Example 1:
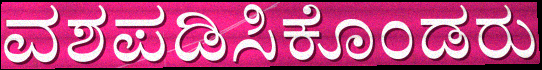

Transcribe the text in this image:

ವಶಪಡಿಸಿಕೊಂಡರು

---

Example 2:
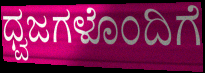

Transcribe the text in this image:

ಧ್ವಜಗಳೊಂದಿಗೆ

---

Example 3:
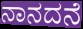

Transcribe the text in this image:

ನಾನದನೆ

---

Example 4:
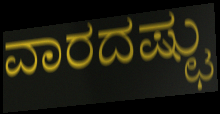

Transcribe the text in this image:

ವಾರದಷ್ಟು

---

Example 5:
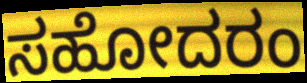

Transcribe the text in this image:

ಸಹೋದರಂ